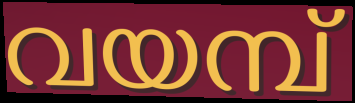
വയമ്പ്